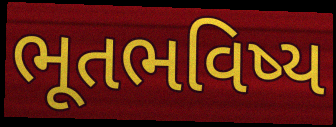
ભૂતભવિષ્ય